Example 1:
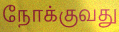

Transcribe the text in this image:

நோக்குவது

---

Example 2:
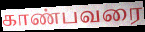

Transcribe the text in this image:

காண்பவரை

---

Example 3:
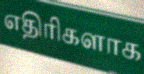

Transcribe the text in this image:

எதிரிகளாக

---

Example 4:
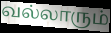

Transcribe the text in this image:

வல்லாரும்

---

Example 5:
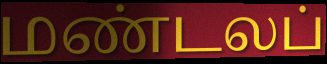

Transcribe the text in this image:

மண்டலப்